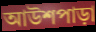
আউশপাড়া